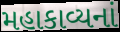
મહાકાવ્યનાં